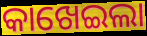
କାଖେଇଲା